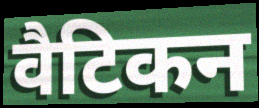
वैटिकन